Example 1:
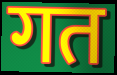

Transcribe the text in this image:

गत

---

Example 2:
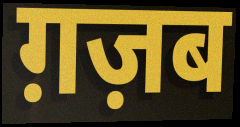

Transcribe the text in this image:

ग़ज़ब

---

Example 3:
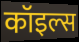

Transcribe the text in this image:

कॉइल्स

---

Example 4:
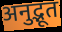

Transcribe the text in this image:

अनुद्भूत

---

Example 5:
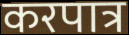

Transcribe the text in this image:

करपात्र